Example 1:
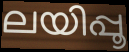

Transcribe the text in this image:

ലയിപ്പൂ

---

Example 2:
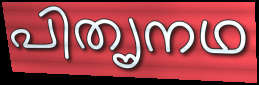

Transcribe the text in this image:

പിതൄനഥ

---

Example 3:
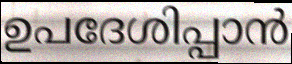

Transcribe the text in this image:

ഉപദേശിപ്പാൻ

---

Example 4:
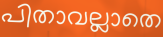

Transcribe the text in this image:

പിതാവല്ലാതെ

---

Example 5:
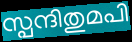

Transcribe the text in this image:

സ്പന്ദിതുമപി